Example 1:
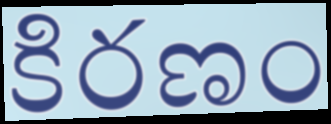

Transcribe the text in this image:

కిరణం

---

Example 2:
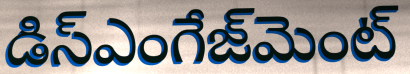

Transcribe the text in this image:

డిస్ఎంగేజ్‌మెంట్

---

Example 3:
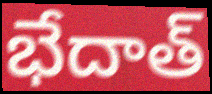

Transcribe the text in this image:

భేదాత్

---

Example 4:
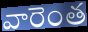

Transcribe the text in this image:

వారెంత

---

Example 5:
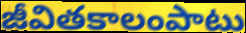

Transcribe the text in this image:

జీవితకాలంపాటు